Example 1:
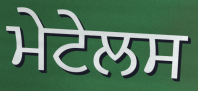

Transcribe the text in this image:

ਮੇਟੇਲਸ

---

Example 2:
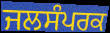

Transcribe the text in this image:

ਜਲਸੰਪਰਕ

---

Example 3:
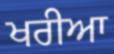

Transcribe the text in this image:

ਖਰੀਆ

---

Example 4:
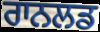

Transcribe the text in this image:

ਰਾਨਲਡ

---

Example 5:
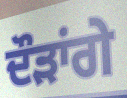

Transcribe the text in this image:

ਦੌੜਾਂਗੇ